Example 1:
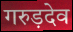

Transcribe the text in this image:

गरुड़देव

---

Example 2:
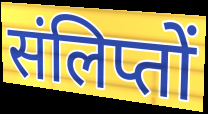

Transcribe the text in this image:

संलिप्तों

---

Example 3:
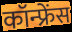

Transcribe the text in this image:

कॉन्फ्रेंस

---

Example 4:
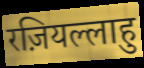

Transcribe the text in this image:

रज़ियल्लाहु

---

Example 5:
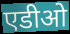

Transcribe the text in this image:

एडीओ